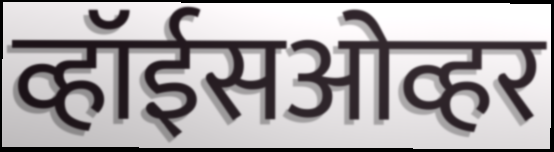
व्हॉईसओव्हर